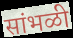
सांभळी